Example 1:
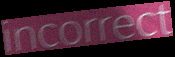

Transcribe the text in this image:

incorrect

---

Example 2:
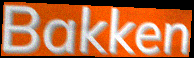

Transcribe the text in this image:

Bakken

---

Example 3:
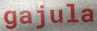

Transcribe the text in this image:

gajula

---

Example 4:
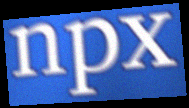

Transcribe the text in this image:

npx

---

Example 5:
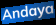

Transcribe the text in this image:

Andaya